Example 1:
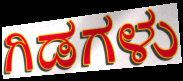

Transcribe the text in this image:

ಗಿಡಗಳು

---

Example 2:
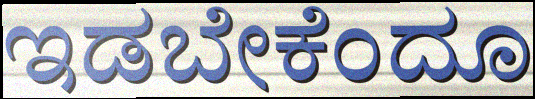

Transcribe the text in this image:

ಇಡಬೇಕೆಂದೂ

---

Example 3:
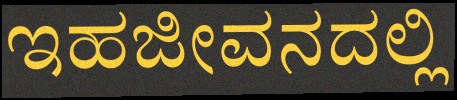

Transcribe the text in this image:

ಇಹಜೀವನದಲ್ಲಿ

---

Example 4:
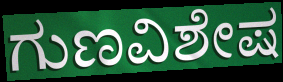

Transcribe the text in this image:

ಗುಣವಿಶೇಷ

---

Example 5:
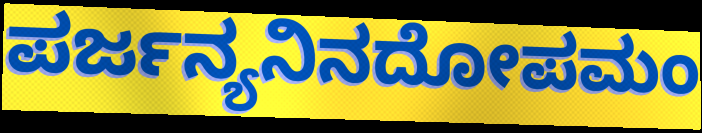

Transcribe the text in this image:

ಪರ್ಜನ್ಯನಿನದೋಪಮಂ